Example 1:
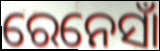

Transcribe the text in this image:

ରେନେସାଁ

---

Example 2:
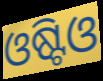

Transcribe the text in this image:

ଓଷ୍ଟିଓ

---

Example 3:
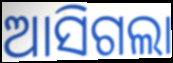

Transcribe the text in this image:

ଆସିଗଲା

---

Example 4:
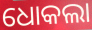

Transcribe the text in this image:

ଧୋକଲା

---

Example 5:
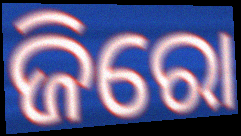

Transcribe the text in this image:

ଜିରୋ